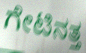
ಗೇಟಿನತ್ತ